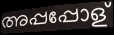
അപ്പപ്പോള്